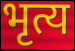
भृत्य